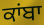
ਕਾਂਬਾ